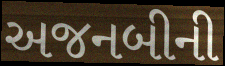
અજનબીની